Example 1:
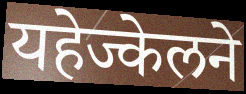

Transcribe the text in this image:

यहेज्केलने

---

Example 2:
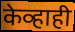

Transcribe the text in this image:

केव्हाही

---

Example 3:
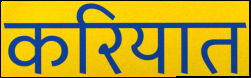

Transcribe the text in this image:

करियात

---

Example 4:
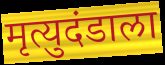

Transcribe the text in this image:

मृत्युदंडाला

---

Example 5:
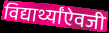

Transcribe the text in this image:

विद्यार्थ्यांऐवजी